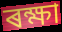
ৰক্ষা